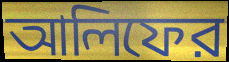
আলিফের